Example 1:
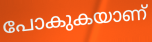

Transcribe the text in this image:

പോകുകയാണ്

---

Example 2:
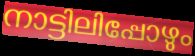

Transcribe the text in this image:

നാട്ടിലിപ്പോഴും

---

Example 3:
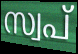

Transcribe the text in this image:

സ്വപ്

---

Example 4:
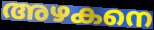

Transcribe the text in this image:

അഴകനെ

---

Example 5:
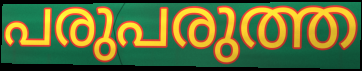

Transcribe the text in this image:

പരുപരുത്ത